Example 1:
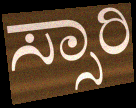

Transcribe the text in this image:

ಸ್ಸಾರಿ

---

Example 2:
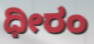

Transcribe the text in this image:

ಧೀರಂ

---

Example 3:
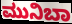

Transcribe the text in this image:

ಮುನಿಬಾ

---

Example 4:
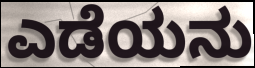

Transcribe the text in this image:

ಎಡೆಯನು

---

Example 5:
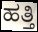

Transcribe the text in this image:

ಹತ್ತಿ